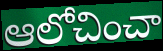
ఆలోచించా